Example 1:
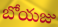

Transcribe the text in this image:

బోయజు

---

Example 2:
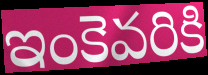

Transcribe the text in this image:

ఇంకెవరికి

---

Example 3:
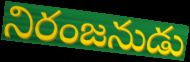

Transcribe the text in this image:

నిరంజనుడు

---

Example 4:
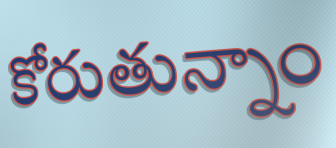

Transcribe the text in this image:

కోరుతున్నాం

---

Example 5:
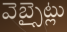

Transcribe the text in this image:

వెబ్సైట్లు